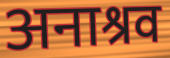
अनाश्रव